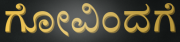
ಗೋವಿಂದಗೆ